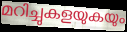
മറിച്ചുകളയുകയും